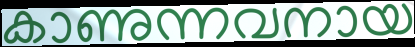
കാണുന്നവനായ